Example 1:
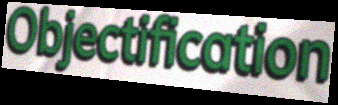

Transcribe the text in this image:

Objectification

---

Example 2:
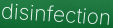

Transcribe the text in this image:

disinfection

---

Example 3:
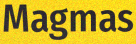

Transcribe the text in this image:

Magmas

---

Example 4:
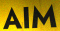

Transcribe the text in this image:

AIM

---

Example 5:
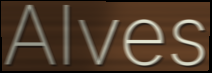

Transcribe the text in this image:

Alves